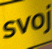
svoj